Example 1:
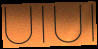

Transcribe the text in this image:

UIUI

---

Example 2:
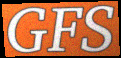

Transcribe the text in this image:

GFS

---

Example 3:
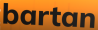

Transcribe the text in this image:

bartan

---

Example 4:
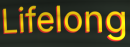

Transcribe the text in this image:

Lifelong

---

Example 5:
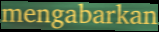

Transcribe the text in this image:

mengabarkan